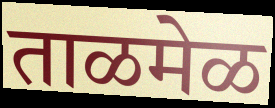
ताळमेळ